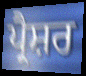
ਪ੍ਰੈਸ਼ਰ